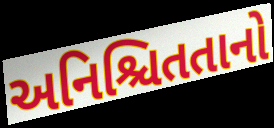
અનિશ્ચિતતાનો